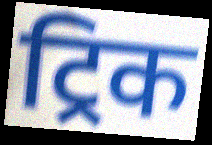
ट्रिक